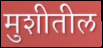
मुशीतील